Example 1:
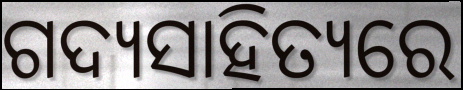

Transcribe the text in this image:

ଗଦ୍ୟସାହିତ୍ୟରେ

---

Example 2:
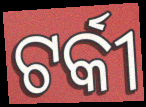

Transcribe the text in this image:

ଟର୍କୀ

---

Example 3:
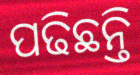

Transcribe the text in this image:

ପଢିଛନ୍ତି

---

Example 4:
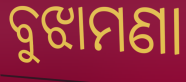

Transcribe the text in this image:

ବୁଝାମଣା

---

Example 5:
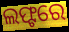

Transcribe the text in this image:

ଲଫ୍ଟରେ